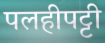
पलहीपट्टी